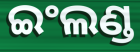
ଇଂଲଣ୍ଡ